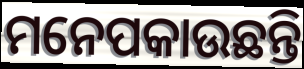
ମନେପକାଉଛନ୍ତି